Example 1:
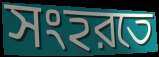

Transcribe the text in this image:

সংহরতে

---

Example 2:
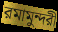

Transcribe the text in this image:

রমামুন্দরী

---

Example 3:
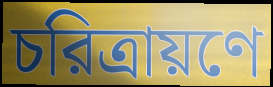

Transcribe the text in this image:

চরিত্রায়ণে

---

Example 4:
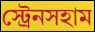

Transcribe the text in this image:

স্ট্রেনসহাম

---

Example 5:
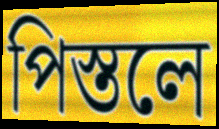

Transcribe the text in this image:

পিস্তলে